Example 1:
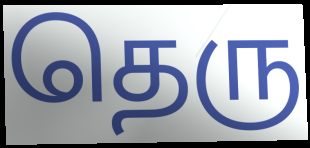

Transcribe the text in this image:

தெரு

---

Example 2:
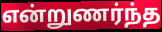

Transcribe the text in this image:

என்றுணர்ந்த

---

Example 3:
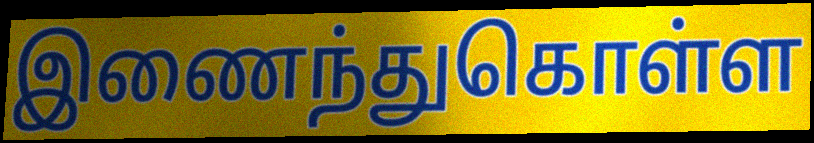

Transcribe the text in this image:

இணைந்துகொள்ள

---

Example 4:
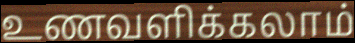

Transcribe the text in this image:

உணவளிக்கலாம்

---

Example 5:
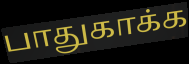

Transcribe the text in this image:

பாதுகாக்க